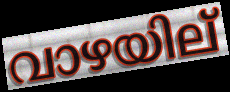
വാഴയില്